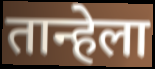
तान्हेला